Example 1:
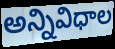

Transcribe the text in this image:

అన్నివిధాల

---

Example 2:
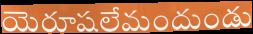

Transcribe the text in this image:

యెరూషలేమందుండు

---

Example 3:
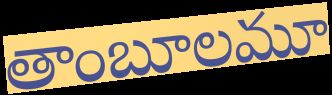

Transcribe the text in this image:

తాంబూలమూ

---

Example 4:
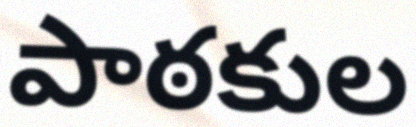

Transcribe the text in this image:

పాఠకుల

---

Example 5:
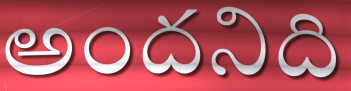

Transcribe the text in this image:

అందనిది